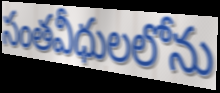
సంతవీధులలోను